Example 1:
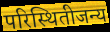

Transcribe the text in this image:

परिस्थितीजन्य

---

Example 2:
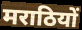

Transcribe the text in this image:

मराठियों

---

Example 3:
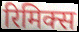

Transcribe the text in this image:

रिमिक्स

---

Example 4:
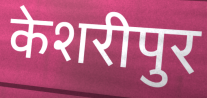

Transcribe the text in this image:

केशरीपुर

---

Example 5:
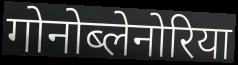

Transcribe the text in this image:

गोनोब्लेनोरिया